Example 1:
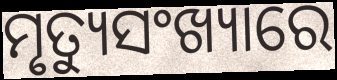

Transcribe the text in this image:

ମୃତ୍ୟୁସଂଖ୍ୟାରେ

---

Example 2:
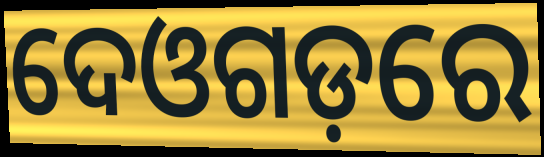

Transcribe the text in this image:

ଦେଓଗଡ଼ରେ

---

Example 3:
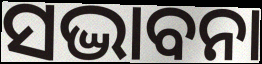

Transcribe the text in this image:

ସଦ୍ଭାବନା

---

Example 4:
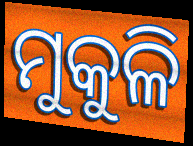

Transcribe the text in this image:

ମୁକୁଳି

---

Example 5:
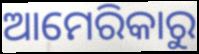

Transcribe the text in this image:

ଆମେରିକାରୁ